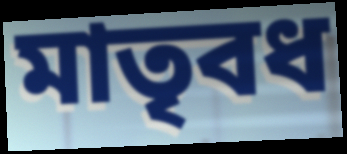
মাতৃবধ